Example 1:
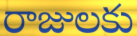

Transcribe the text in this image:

రాజులకు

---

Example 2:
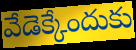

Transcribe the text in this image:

వేడెక్కేందుకు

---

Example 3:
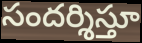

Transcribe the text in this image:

సందర్శిస్తూ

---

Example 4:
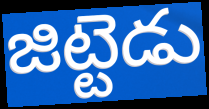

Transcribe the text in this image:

జిట్టెడు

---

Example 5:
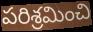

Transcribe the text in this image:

పరిశ్రమించి